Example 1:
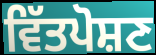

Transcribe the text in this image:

ਵਿੱਤਪੋਸ਼ਣ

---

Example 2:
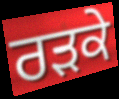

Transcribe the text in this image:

ਰੜਕੇ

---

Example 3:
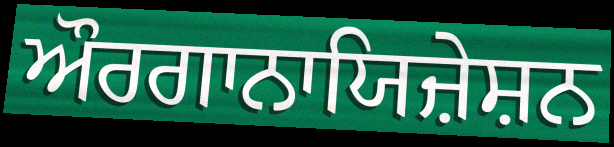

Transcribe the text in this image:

ਔਰਗਾਨਾਯਿਜ਼ੇਸ਼ਨ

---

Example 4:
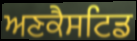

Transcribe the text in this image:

ਅਣਕੈਸਟਿਡ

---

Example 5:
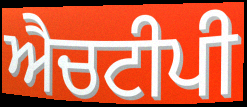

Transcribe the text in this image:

ਐਚਟੀਪੀ